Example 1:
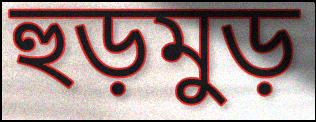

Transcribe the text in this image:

হুড়মুড়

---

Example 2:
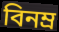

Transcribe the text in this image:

বিনম্র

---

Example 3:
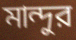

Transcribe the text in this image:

মান্দুর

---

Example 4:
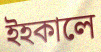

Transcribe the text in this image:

ইহকালে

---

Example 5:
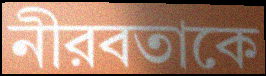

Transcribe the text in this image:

নীরবতাকে